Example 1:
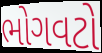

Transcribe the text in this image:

ભોગવટો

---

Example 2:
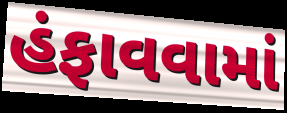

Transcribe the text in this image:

હંફાવવામાં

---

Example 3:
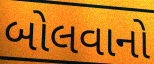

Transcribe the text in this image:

બોલવાનો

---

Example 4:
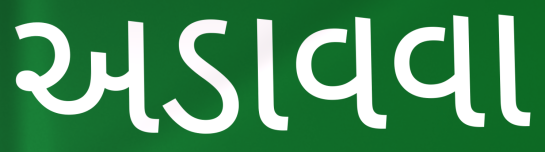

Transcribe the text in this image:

અડાવવા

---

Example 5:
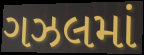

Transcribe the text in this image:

ગઝલમાં